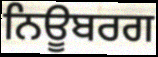
ਨਿਊਬਰਗ